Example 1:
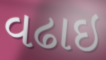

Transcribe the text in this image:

વઢાઇ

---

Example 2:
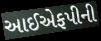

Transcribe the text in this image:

આઈએફપીની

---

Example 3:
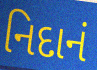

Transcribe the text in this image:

નિદાનં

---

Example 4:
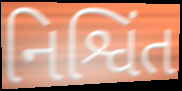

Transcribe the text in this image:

નિશ્વિંત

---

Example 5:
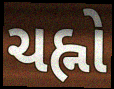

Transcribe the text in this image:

ચહ્નો